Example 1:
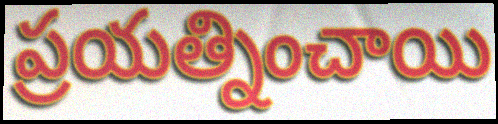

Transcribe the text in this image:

ప్రయత్నించాయి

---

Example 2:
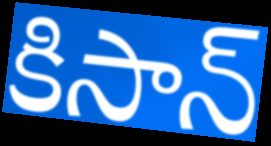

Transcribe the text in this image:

కిసాన్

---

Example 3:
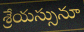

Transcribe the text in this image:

శ్రేయస్సునూ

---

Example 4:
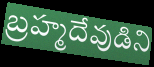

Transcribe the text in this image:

బ్రహ్మదేవుడిని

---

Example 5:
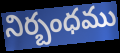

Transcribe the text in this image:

నిర్బంధము